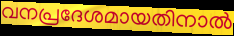
വനപ്രദേശമായതിനാൽ